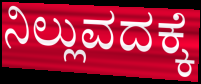
ನಿಲ್ಲುವದಕ್ಕೆ